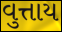
વુત્તાય